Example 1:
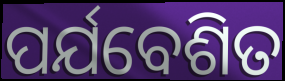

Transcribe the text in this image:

ପର୍ଯବେଶିତ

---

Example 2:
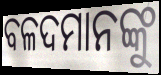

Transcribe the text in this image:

ବଳଦମାନଙ୍କୁ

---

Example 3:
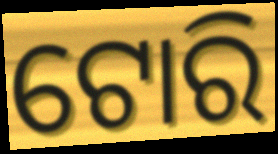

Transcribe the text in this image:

ଟୋରି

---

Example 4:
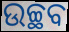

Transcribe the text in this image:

ଉଚ୍ଛବ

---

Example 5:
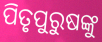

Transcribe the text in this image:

ପିତୃପୁରୁଷଙ୍କୁ